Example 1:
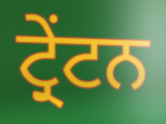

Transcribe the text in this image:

ਟ੍ਰੇਂਟਨ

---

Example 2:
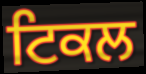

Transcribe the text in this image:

ਟਿਕਲ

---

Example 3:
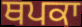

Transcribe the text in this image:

ਥਪਕਾ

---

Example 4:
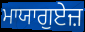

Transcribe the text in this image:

ਮਾਯਾਗੁਏਜ਼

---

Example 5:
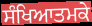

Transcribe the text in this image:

ਸੰਖਿਆਤਮਕੇ